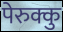
पेरुक्कु